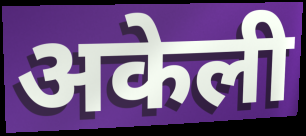
अकेली